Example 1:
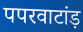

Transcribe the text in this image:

पपरवाटांड़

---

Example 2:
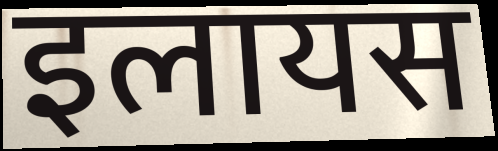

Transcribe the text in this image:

इलायस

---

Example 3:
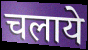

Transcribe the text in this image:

चलाये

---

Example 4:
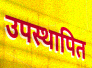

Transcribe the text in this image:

उपस्थापित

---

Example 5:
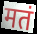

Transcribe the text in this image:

मतं